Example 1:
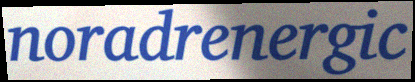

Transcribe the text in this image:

noradrenergic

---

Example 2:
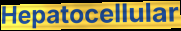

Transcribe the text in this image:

Hepatocellular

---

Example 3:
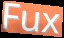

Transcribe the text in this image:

Fux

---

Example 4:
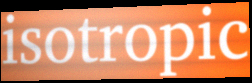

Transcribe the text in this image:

isotropic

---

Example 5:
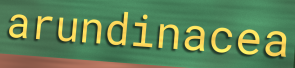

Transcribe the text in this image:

arundinacea